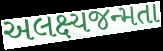
અલક્ષ્યજન્મતા